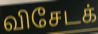
விசேடக்